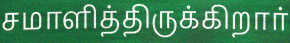
சமாளித்திருக்கிறார்